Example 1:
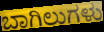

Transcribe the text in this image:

ಬಾಗಿಲುಗಳು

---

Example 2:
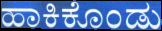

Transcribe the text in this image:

ಹಾಕಿಕೊಂಡು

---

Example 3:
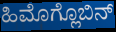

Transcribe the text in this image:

ಹಿಮೊಗ್ಲೊಬಿನ್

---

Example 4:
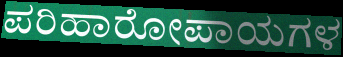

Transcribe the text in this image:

ಪರಿಹಾರೋಪಾಯಗಳ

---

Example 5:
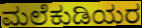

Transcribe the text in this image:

ಮಲೆಕುಡಿಯರ